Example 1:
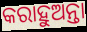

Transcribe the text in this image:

କରାହୁଅନ୍ତା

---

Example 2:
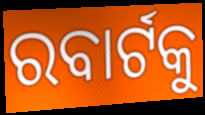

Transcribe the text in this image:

ରବାର୍ଟକୁ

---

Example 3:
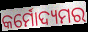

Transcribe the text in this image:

କର୍ମୋଦ୍ୟମର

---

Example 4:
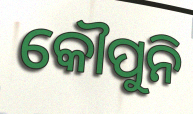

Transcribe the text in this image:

କୌପୁନି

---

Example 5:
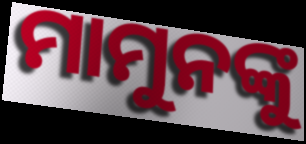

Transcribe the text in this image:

ମାମୁନଙ୍କୁ